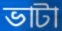
ভাটা